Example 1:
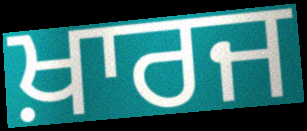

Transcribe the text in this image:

ਖ਼ਾਰਜ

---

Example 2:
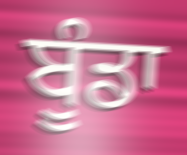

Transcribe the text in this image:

ਬੂੰਡਾ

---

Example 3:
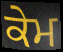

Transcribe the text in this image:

ਕੇਮ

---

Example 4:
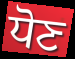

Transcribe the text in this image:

ਧੋਣ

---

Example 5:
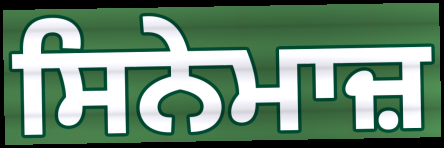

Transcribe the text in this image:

ਸਿਨੇਮਾਜ਼